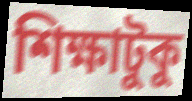
শিক্ষাটুকু